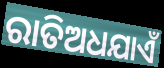
ରାତିଅଧଯାଏଁ